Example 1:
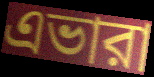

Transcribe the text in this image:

এভারা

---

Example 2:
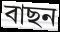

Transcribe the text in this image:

বাছন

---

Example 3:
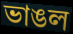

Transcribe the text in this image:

ভাঙল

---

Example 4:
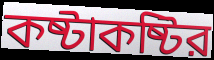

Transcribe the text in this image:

কষ্টাকষ্টির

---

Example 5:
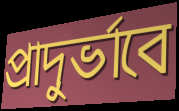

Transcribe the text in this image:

প্রাদুর্ভাবে